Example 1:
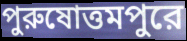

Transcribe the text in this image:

পুরুষোত্তমপুরে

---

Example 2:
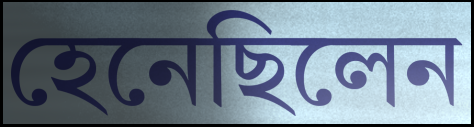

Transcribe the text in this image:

হেনেছিলেন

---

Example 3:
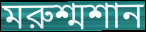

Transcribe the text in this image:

মরুশ্মশান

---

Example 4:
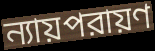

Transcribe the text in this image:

ন্যায়পরায়ণ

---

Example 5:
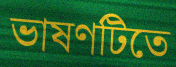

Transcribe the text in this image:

ভাষণটিতে